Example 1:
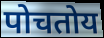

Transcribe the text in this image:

पोचतोय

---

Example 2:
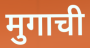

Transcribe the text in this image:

मुगाची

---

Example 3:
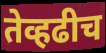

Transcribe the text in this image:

तेव्हढीच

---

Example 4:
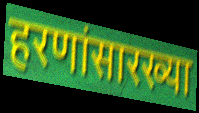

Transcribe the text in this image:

हरणांसारख्या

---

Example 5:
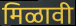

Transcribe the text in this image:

मिळावी